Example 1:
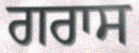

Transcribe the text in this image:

ਗਰਾਸ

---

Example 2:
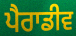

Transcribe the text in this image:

ਪੈਰਾਡੀਵ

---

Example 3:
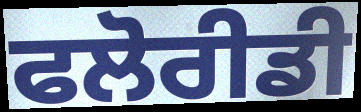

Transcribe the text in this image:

ਫਲੋਰੀਡੀ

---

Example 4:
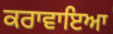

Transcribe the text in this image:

ਕਰਾਵਾਇਆ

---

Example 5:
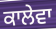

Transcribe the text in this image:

ਕਾਲੇਵਾ